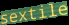
sextile